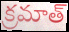
క్రమాత్